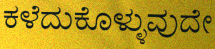
ಕಳೆದುಕೊಳ್ಳುವುದೇ